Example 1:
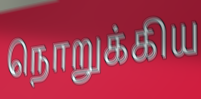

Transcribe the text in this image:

நொறுக்கிய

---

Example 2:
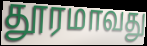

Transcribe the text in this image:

தூரமாவது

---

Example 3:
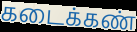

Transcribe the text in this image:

கடைக்கண்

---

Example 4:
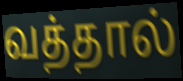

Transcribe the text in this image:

வத்தால்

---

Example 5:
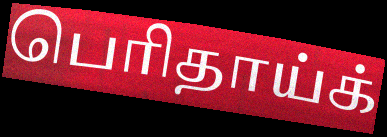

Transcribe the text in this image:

பெரிதாய்க்